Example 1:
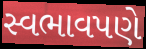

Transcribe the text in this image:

સ્વભાવપણે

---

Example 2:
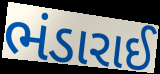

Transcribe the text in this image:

ભંડારાઈ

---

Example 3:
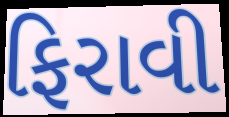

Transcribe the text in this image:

ફિરાવી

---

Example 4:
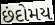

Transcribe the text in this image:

છંદોમય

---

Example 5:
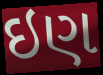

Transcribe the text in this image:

ઇણ